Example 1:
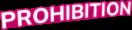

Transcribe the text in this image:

PROHIBITION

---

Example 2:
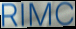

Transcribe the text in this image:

RIMC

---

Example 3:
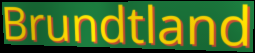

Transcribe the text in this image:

Brundtland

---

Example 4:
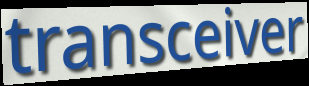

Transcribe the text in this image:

transceiver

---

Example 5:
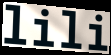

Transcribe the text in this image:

lili